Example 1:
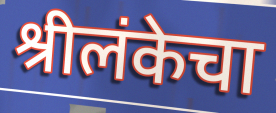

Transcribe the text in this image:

श्रीलंकेचा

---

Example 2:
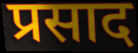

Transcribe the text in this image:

प्रसाद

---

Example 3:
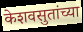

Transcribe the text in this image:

केशवसुतांच्या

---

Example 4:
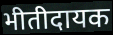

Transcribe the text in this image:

भीतीदायक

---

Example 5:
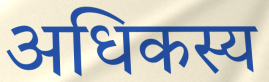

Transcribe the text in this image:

अधिकस्य